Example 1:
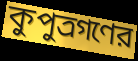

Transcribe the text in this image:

কুপুত্রগণের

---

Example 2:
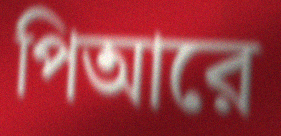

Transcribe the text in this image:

পিআরে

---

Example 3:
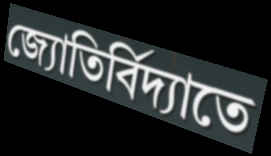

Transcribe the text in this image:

জ্যোতির্বিদ্যাতে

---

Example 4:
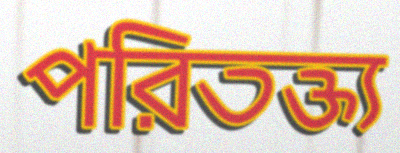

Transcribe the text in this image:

পরিতক্ত্য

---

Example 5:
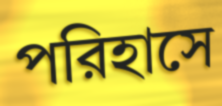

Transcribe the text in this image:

পরিহাসে